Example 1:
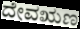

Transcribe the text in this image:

ದೇವಋಣ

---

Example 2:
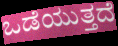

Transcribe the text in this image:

ಒಡೆಯುತ್ತದೆ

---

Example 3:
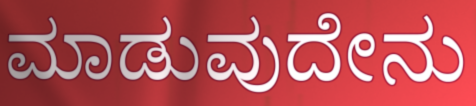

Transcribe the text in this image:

ಮಾಡುವುದೇನು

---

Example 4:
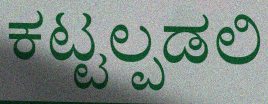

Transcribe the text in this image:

ಕಟ್ಟಲ್ಪಡಲಿ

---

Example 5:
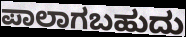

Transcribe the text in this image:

ಪಾಲಾಗಬಹುದು